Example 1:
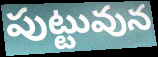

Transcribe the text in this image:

పుట్టువున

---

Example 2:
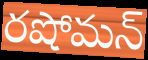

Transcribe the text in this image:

రషోమన్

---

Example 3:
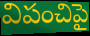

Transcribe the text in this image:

విపంచిపై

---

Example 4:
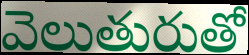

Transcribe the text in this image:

వెలుతురుతో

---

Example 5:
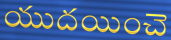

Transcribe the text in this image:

యుదయించె